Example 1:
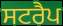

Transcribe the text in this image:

ਸਟਰੈਪ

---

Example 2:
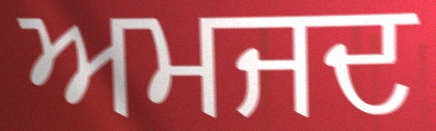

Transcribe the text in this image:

ਅਮਜਦ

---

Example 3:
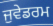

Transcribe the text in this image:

ਜੁਵੇਡਰਮ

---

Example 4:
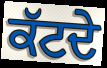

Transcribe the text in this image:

ਕੱਟਦੇ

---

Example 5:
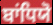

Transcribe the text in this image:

ਬਾਂਧਿਯੋ